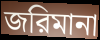
জরিমানা